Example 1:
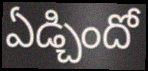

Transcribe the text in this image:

ఏడ్చిందో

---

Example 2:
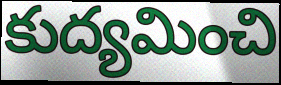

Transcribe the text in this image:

కుద్యమించి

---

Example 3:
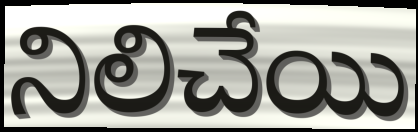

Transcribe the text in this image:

నిలిచేయి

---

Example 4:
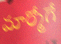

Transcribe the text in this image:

మార్మోగే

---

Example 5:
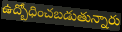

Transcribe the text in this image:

ఉద్బోధించబడుతున్నారు